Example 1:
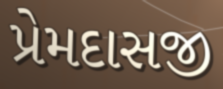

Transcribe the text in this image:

પ્રેમદાસજી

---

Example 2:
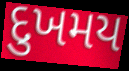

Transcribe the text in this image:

દુખમય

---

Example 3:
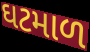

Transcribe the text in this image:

ઘટમાળ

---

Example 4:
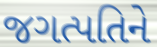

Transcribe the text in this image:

જગત્પતિને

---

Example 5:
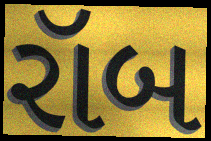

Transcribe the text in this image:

રૉબ